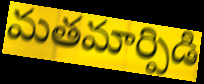
మతమార్పిడి